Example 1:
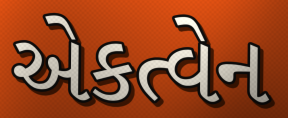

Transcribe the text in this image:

એકત્વેન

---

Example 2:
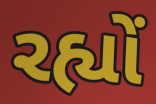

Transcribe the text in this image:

રહ્યોં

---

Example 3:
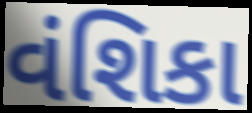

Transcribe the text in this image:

વંશિકા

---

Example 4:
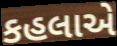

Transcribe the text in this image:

કહલાએ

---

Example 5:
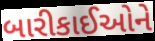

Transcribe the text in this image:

બારીકાઈઓને